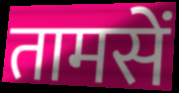
तामसें